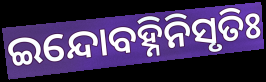
ଇନ୍ଦୋବହ୍ନିନିସୃତିଃ